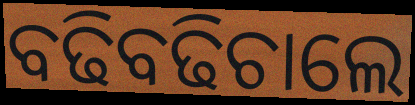
ବଢିବଢିଚାଲେ